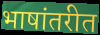
भाषांतरीत